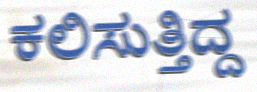
ಕಲಿಸುತ್ತಿದ್ದ